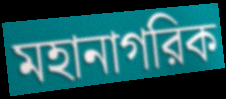
মহানাগরিক